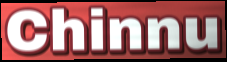
Chinnu